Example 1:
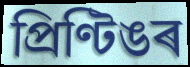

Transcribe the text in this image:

প্ৰিণ্টিঙৰ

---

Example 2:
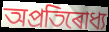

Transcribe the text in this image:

অপ্ৰতিৰোধ্য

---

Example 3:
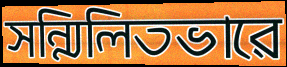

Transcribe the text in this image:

সন্মিলিতভাৱে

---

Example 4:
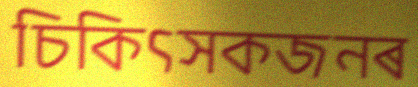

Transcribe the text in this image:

চিকিৎসকজনৰ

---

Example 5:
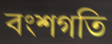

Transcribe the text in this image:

বংশগতি